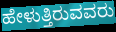
ಹೇಳುತ್ತಿರುವವರು